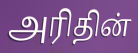
அரிதின்